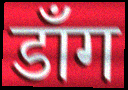
डाँग